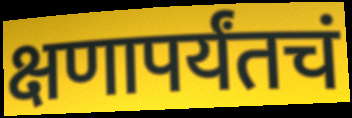
क्षणापर्यंतचं